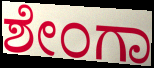
ಶೇಂಗಾ